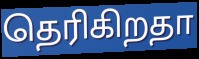
தெரிகிறதா